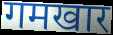
गमखार